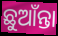
ଛୁଆଁନ୍ତା